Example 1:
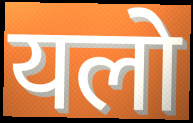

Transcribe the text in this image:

यलो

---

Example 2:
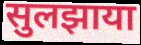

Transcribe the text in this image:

सुलझाया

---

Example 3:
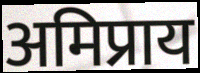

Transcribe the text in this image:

अमिप्राय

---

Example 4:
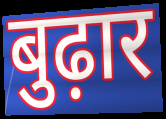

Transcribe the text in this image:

बुढ़ार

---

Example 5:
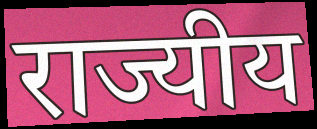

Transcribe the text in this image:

राज्‍यीय